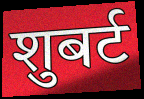
शुबर्ट